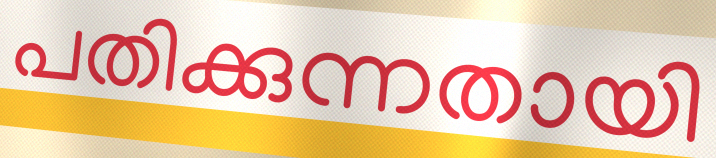
പതിക്കുന്നതായി